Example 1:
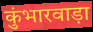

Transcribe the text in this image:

कुंभारवाड़ा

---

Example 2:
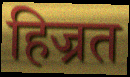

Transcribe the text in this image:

हिज्रत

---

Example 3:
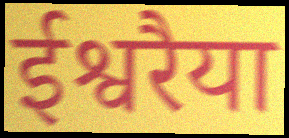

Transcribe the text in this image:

ईश्वरैया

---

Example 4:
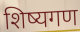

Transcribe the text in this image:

शिष्यगण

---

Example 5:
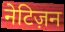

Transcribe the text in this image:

नेटिज़न